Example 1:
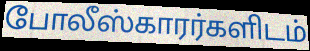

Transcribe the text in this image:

போலீஸ்காரர்களிடம்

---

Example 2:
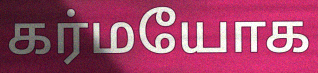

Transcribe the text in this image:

கர்மயோக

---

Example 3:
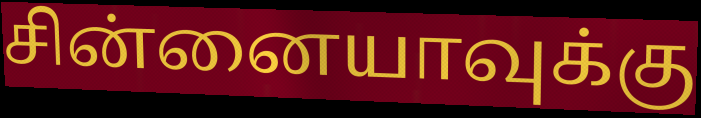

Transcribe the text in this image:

சின்னையாவுக்கு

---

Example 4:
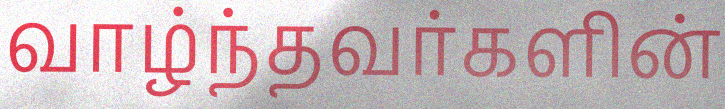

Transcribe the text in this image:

வாழ்ந்தவர்களின்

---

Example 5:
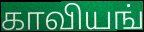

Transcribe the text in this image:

காவியங்